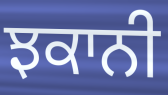
ਝਕਾਨੀ